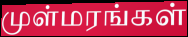
முள்மரங்கள்